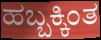
ಹಬ್ಬಕ್ಕಿಂತ